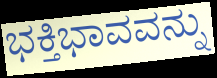
ಭಕ್ತಿಭಾವವನ್ನು